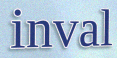
inval